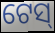
ଟେସ୍